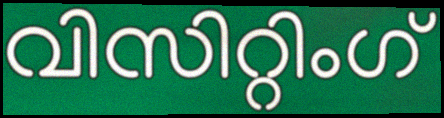
വിസിറ്റിംഗ്